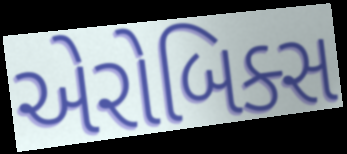
એરોબિક્સ